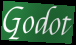
Godot